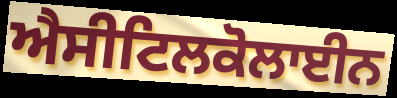
ਐਸੀਟਿਲਕੋਲਾਈਨ